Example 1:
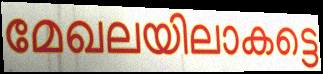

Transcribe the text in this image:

മേഖലയിലാകട്ടെ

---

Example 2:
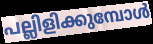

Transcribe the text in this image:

പല്ലിളിക്കുമ്പോൾ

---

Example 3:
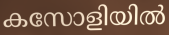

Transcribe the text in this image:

കസോളിയിൽ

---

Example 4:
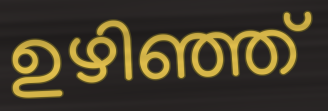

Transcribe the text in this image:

ഉഴിഞ്ഞ്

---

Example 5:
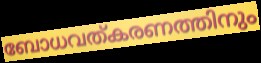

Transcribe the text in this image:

ബോധവത്കരണത്തിനും